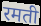
रमती